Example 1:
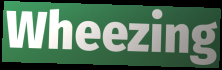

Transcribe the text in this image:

Wheezing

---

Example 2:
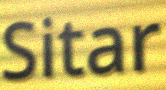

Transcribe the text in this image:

Sitar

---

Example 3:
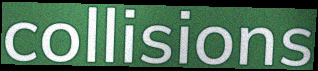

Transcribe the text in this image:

collisions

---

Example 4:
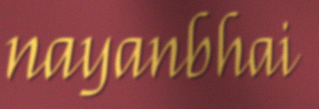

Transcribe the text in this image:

nayanbhai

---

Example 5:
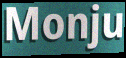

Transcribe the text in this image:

Monju